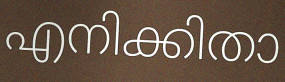
എനിക്കിതാ